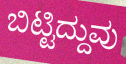
ಬಿಟ್ಟಿದ್ದುವು